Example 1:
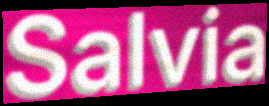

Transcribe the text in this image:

Salvia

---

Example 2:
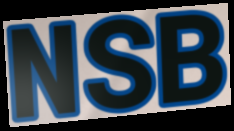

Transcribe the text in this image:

NSB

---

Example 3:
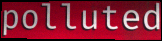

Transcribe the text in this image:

polluted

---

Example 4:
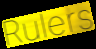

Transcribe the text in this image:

Rulers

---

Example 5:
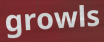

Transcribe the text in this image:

growls